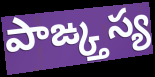
పాఙ్క్తస్య